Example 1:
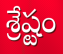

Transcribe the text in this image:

శ్రేష్టం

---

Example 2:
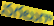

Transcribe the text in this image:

నగలుగా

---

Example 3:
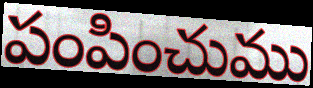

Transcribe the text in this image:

పంపించుము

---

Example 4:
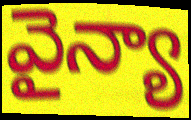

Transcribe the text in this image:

వైన్యా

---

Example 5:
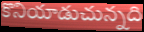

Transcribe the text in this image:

కొనియాడుచున్నది